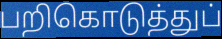
பறிகொடுத்துப்